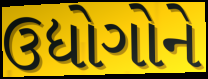
ઉદ્યોગોને